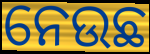
ନେଉଛ